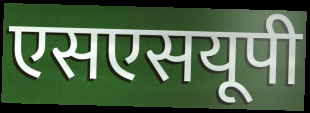
एसएसयूपी